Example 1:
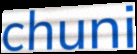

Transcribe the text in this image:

chuni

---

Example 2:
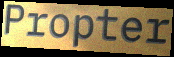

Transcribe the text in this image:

Propter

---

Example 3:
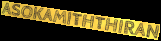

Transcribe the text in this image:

ASOKAMITHTHIRAN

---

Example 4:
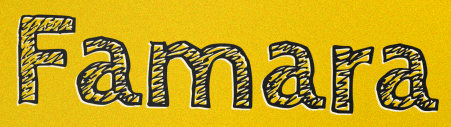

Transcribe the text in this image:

Famara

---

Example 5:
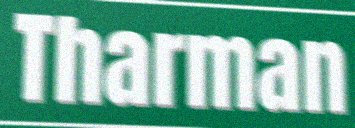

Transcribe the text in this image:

Tharman